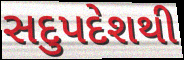
સદુપદેશથી